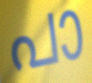
പാ